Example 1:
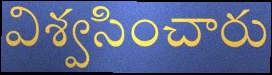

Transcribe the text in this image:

విశ్వసించారు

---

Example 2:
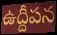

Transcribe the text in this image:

ఉద్దీపన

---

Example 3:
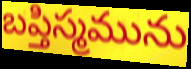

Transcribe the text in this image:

బప్తిస్మమును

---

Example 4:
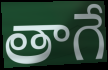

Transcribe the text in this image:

తాగే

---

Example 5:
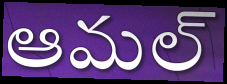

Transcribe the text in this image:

ఆమల్